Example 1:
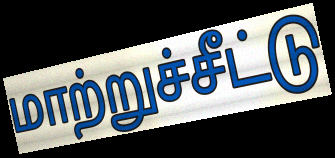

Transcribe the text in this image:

மாற்றுச்சீட்டு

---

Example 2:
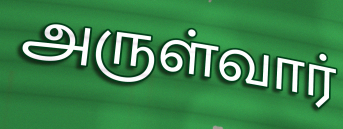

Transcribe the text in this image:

அருள்வார்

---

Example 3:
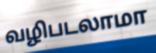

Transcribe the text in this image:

வழிபடலாமா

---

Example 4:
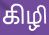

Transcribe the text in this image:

கிழி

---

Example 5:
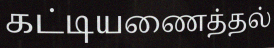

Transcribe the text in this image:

கட்டியணைத்தல்